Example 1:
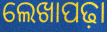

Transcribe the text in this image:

ଲେଖାପଢ଼ା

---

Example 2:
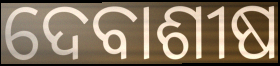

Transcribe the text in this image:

ଦେବାଶୀଷ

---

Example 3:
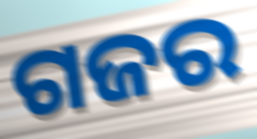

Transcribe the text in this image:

ଗଜର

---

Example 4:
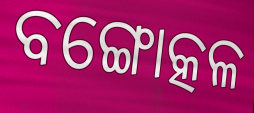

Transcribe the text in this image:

ବଙ୍ଗୋତ୍କଳ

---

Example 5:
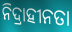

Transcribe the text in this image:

ନିଦ୍ରାହୀନତା